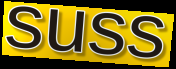
suss